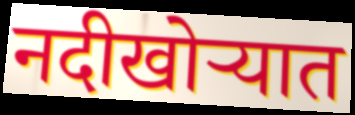
नदीखोर्‍यात